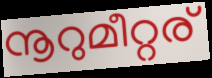
നൂറുമീറ്റര്